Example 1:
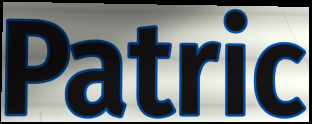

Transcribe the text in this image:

Patric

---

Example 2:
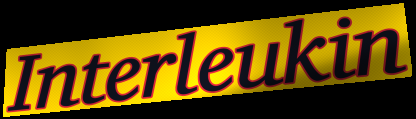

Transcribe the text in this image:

Interleukin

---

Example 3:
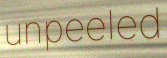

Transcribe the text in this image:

unpeeled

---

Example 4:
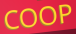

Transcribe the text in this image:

COOP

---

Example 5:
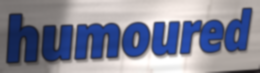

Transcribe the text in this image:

humoured